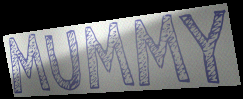
MUMMY